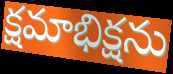
క్షమాభిక్షను